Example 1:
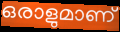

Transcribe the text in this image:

ഒരാളുമാണ്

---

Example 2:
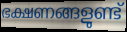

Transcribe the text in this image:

ഭക്ഷണങ്ങളുണ്ട്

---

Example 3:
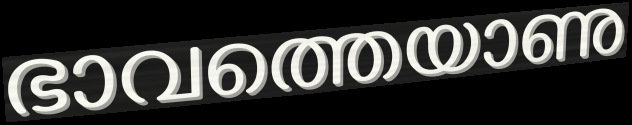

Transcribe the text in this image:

ഭാവത്തെയാണു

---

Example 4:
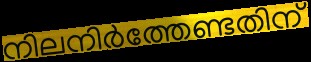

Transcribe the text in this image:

നിലനിർത്തേണ്ടതിന്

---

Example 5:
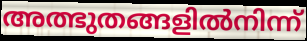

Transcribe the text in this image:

അത്ഭുതങ്ങളിൽനിന്ന്